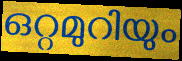
ഒറ്റമുറിയും